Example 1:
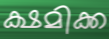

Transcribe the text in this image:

ക്ഷമിക്ക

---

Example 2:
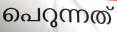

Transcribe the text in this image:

പെറുന്നത്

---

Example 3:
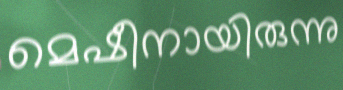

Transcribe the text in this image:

മെഷീനായിരുന്നു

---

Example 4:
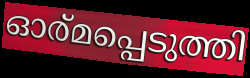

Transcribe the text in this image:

ഓര്മപ്പെടുത്തി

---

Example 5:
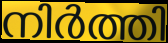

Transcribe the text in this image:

നിർത്തി